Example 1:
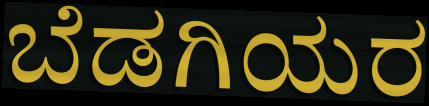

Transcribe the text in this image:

ಬೆಡಗಿಯರ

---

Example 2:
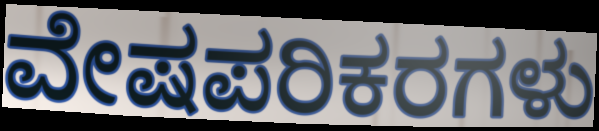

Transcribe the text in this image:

ವೇಷಪರಿಕರಗಳು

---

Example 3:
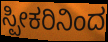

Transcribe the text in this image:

ಸ್ಪೀಕರಿನಿಂದ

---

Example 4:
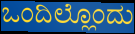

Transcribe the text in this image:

ಒಂದಿಲ್ಲೊಂದು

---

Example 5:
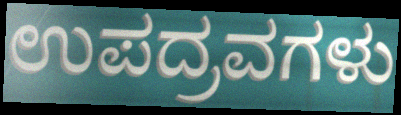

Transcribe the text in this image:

ಉಪದ್ರವಗಳು